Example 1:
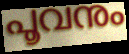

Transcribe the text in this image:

പൂവനും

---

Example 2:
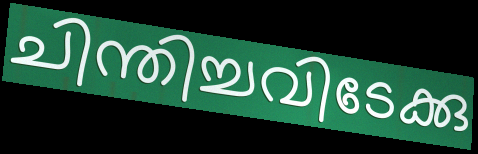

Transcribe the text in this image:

ചിന്തിച്ചവിടേക്കു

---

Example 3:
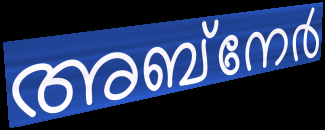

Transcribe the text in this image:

അബ്നേർ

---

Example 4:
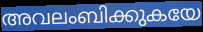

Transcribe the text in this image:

അവലംബിക്കുകയേ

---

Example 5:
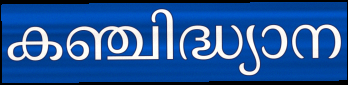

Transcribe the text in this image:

കഞ്ചിദ്ധ്യാന